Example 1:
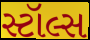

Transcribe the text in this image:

સ્ટૉલ્સ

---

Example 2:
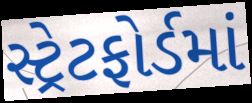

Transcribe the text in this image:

સ્ટ્રેટફોર્ડમાં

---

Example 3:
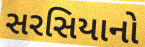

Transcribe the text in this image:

સરસિયાનો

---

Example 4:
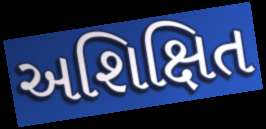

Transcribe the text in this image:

અશિક્ષિત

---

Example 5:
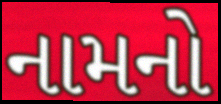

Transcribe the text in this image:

નામનો